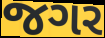
જગર